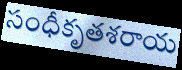
సంధీకృతశరాయ